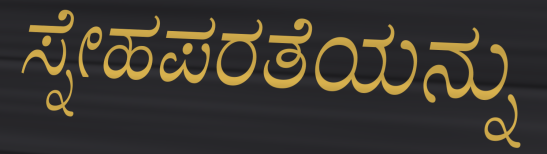
ಸ್ನೇಹಪರತೆಯನ್ನು